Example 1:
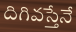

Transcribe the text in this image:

దిగివస్తేనే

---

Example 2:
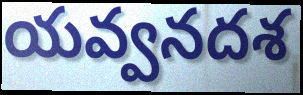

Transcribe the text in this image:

యవ్వనదశ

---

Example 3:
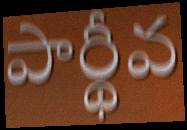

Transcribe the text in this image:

పార్థీవ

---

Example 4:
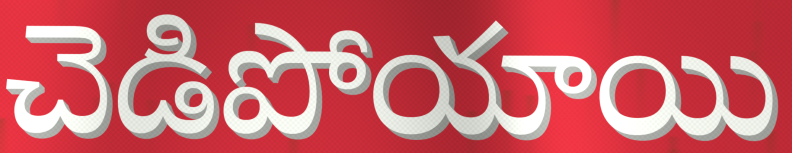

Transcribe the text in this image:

చెడిపోయాయి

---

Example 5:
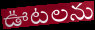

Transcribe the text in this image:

ఊటలను